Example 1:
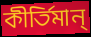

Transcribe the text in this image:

কীর্তিমান্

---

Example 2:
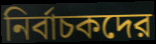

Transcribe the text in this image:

নির্বাচকদের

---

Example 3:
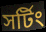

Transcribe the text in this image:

সর্টিং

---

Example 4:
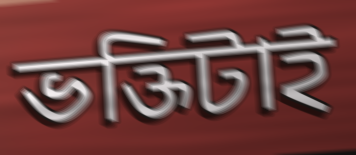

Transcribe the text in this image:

ভক্তিটাই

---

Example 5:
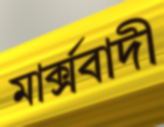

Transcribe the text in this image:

মার্ক্সবাদী